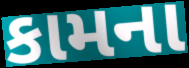
કામના